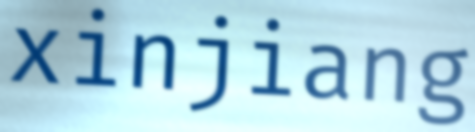
xinjiang